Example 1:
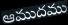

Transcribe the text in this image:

ఆముదము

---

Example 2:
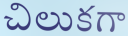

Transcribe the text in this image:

చిలుకగా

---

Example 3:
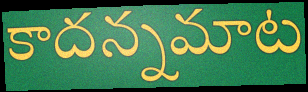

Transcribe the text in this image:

కాదన్నమాట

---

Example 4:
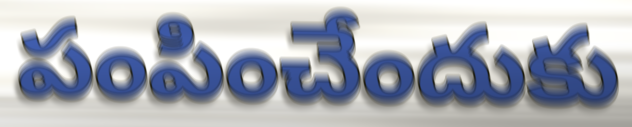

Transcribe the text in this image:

పంపించేందుకు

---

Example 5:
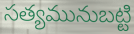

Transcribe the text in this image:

సత్యమునుబట్టి